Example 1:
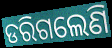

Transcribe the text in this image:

ଡରିଗଲେଣି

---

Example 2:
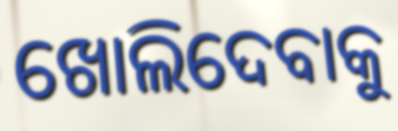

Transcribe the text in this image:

ଖୋଲିଦେବାକୁ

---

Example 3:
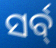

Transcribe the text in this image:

ସର୍ବ୍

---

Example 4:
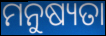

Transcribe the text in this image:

ମନୁଷ୍ୟତା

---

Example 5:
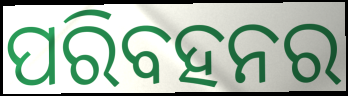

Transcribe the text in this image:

ପରିବହନର